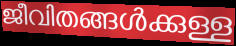
ജീവിതങ്ങൾക്കുള്ള